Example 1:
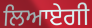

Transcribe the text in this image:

ਲਿਆਏਗੀ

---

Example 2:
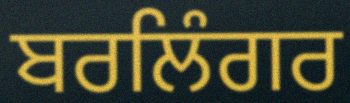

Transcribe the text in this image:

ਬਰਲਿੰਗਰ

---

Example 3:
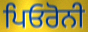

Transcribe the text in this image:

ਪਿਓਰੋਨੀ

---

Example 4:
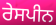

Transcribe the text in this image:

ਰੇਸਪੀਨ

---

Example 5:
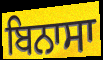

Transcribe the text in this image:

ਬਿਨਾਸਾ